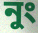
নুং